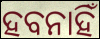
ହବନାହିଁ